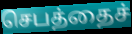
செபத்தைச்